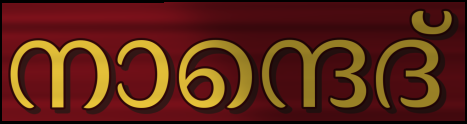
നാന്ദെദ്